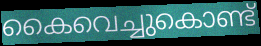
കൈവെച്ചുകൊണ്ട്